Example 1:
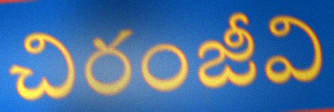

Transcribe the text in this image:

చిరంజీవి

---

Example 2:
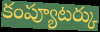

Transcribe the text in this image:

కంప్యూటర్కు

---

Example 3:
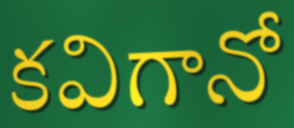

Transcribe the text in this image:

కవిగానో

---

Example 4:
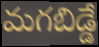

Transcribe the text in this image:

మగబిడ్డే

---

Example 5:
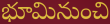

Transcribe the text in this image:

భూమినుంచి